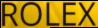
ROLEX